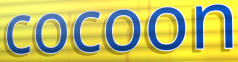
cocoon